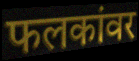
फलकांवर